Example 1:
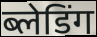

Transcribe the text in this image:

ब्लेडिंग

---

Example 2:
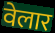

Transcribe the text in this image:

वेलार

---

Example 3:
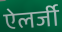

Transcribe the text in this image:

ऐलर्जी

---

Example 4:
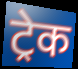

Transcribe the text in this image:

ट्रेक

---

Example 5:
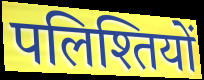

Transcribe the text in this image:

पलिश्तियों